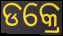
ଡକ୍ରେ